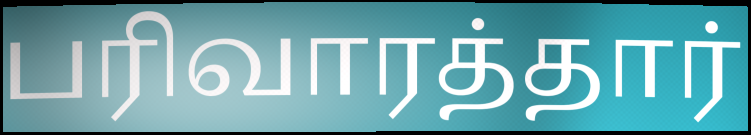
பரிவாரத்தார்